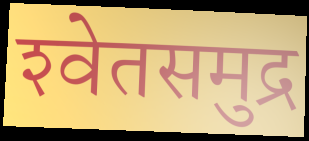
श्वेतसमुद्र